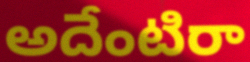
అదేంటిరా